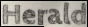
Herald